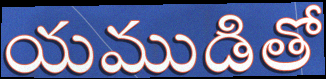
యముడితో